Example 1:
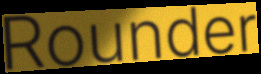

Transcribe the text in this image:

Rounder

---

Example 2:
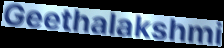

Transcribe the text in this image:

Geethalakshmi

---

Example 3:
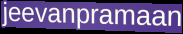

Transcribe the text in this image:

jeevanpramaan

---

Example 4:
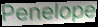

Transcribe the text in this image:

Penelope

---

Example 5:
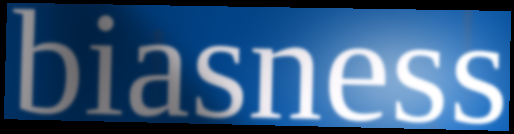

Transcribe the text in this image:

biasness